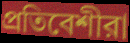
প্রতিবেশীরা